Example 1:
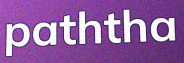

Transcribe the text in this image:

paththa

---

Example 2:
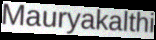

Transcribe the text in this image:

Mauryakalthi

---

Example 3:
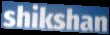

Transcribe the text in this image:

shikshan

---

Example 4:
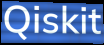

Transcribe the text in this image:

Qiskit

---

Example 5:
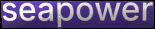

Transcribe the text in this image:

seapower